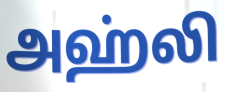
அஹ்லி